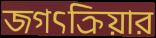
জগৎক্রিয়ার